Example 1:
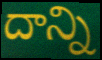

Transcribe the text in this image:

దాన్ని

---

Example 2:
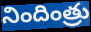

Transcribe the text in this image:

నిందింత్రు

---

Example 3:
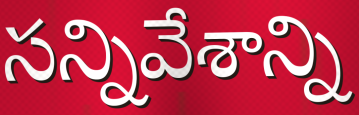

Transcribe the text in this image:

సన్నివేశాన్ని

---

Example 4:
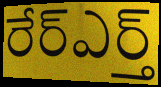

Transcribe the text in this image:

రేర్ఎర్త్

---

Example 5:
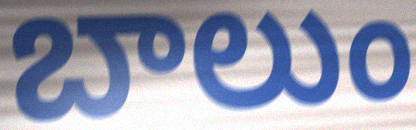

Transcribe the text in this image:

బాలుం